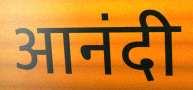
आनंदी